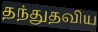
தந்துதவிய